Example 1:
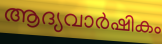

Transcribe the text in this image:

ആദ്യവാർഷികം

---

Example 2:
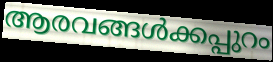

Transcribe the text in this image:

ആരവങ്ങൾക്കപ്പുറം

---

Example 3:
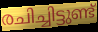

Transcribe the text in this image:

രചിച്ചിട്ടുണ്ട്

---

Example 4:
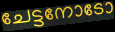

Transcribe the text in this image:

ചേട്ടനോടോ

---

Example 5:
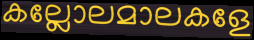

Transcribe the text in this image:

കല്ലോലമാലകളേ